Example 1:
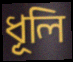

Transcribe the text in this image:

ধূলি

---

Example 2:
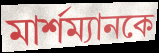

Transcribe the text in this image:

মার্শম্যানকে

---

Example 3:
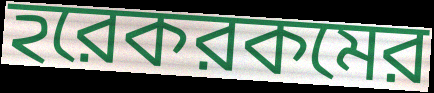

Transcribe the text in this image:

হরেকরকমের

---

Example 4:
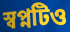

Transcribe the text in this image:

স্বপ্নটিও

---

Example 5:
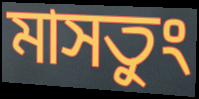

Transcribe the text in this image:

মাসতুং